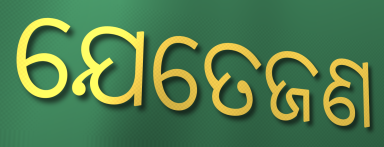
ଯେତେଜଣ